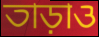
তাড়াও